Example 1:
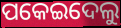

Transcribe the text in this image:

ପକେଇଦେଲୁ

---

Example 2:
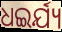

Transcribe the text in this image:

ଧଇର୍ଯ୍ୟ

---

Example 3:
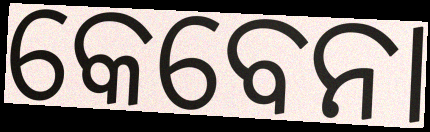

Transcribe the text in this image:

କେବେନା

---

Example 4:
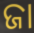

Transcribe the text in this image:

ଜା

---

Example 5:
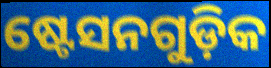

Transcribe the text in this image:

ଷ୍ଟେସନଗୁଡ଼ିକ